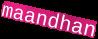
maandhan